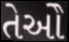
તેઓે